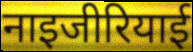
नाइजीरियाई